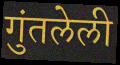
गुंतलेली